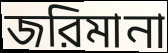
জরিমানা